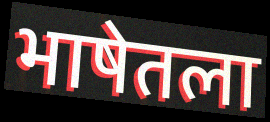
भाषेतला